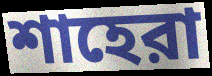
শাহেরা